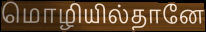
மொழியில்தானே